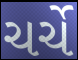
ચર્ચે